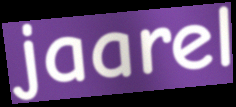
jaarel